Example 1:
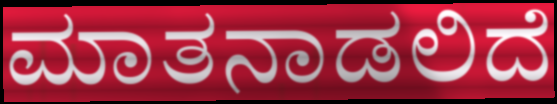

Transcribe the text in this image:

ಮಾತನಾಡಲಿದೆ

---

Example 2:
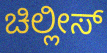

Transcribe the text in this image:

ಚಿಲ್ಲೀಸ್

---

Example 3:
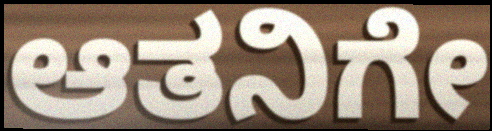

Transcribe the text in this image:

ಆತನಿಗೇ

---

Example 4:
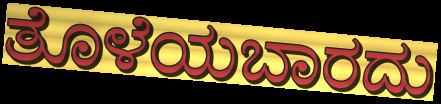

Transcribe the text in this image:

ತೊಳೆಯಬಾರದು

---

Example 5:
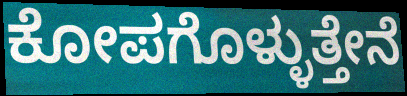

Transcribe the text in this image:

ಕೋಪಗೊಳ್ಳುತ್ತೇನೆ